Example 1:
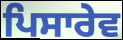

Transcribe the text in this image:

ਪਿਸਾਰੇਵ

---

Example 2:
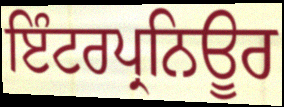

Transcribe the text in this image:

ਇੰਟਰਪ੍ਰਨਿਊਰ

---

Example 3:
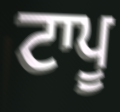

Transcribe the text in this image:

ਟਾਪੂ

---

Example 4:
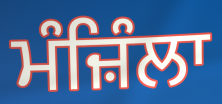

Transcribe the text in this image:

ਮੰਜ਼ਿੰਲਾ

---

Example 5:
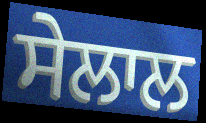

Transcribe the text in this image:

ਸੇਲਾਲ